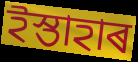
ইস্তাহাৰ